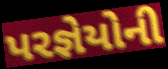
પરજ્ઞેયોની